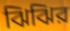
ঝিঝির